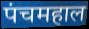
पंचमहाल